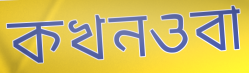
কখনওবা